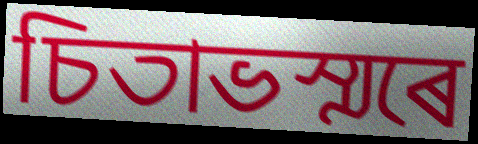
চিতাভস্মৰে